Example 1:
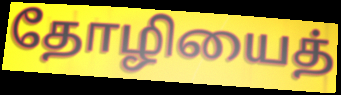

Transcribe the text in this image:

தோழியைத்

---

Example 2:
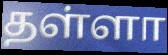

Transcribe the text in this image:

தள்ளா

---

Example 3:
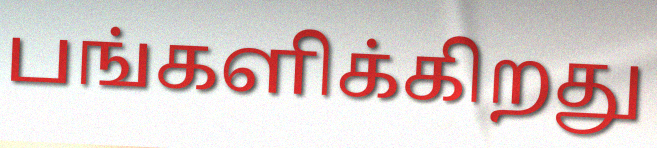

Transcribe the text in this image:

பங்களிக்கிறது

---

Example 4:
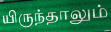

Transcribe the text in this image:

யிருந்தாலும்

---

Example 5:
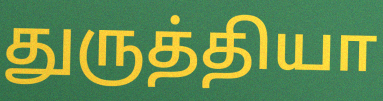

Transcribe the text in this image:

துருத்தியா